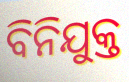
ବିନିଯୁକ୍ତ